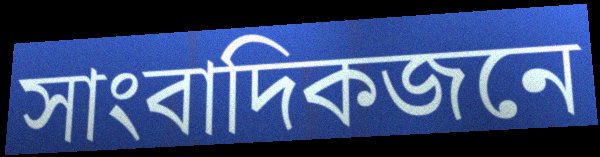
সাংবাদিকজনে